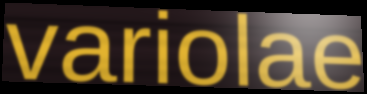
variolae